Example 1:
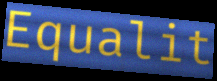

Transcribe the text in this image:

Equalit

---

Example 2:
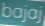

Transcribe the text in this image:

bajaj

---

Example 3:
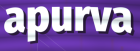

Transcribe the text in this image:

apurva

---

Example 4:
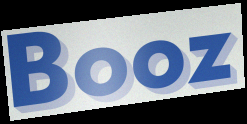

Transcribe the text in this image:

Booz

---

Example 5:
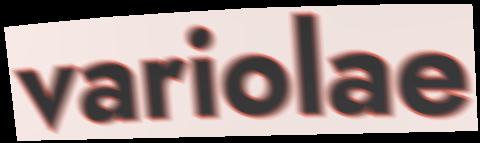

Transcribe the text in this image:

variolae